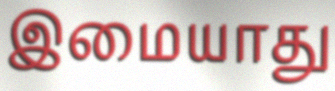
இமையாது